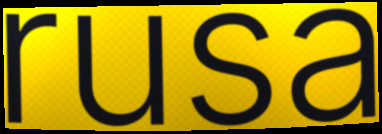
rusa